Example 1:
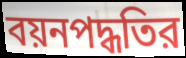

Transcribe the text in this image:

বয়নপদ্ধতির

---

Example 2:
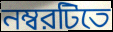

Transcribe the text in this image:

নম্বরটিতে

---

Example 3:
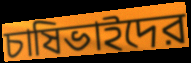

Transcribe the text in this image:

চাষিভাইদের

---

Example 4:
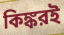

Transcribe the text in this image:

কিঙ্করই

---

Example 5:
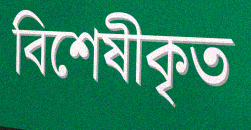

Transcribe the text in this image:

বিশেষীকৃত